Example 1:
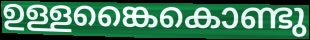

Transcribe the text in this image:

ഉള്ളങ്കൈകൊണ്ടു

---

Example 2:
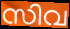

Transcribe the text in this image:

സിവ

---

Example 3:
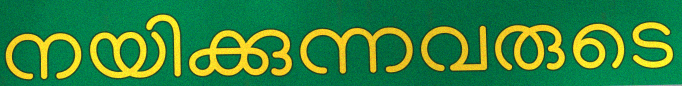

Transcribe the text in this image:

നയിക്കുന്നവരുടെ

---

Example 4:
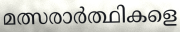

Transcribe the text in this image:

മത്സരാർത്ഥികളെ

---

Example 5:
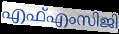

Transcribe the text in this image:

എഫ്എംസിജി